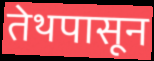
तेथपासून